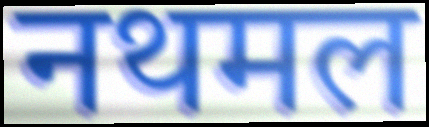
नथमल